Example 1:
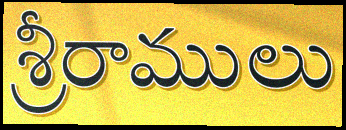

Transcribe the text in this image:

శ్రీరాములు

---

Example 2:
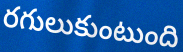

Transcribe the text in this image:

రగులుకుంటుంది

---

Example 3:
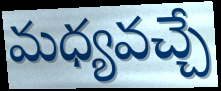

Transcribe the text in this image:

మధ్యవచ్చే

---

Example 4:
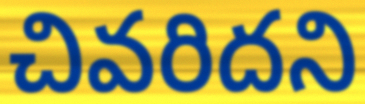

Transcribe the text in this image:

చివరిదని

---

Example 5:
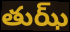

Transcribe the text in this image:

తుఝ్